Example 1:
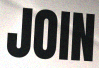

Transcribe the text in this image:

JOIN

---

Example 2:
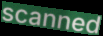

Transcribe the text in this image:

scanned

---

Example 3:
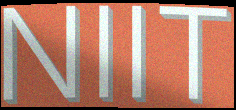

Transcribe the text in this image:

NIIT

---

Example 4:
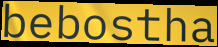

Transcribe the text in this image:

bebostha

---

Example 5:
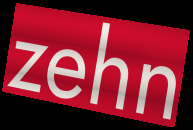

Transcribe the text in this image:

zehn